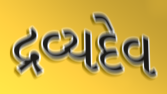
દ્રવ્યદેવ